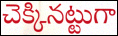
చెక్కినట్టుగా